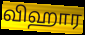
விஹார